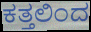
ಕತ್ತಲಿಂದ